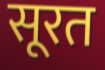
सूरत